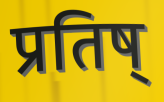
प्रतिष्